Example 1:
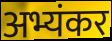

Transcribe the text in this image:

अभ्यंकर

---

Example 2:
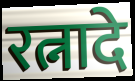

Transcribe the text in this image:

रत्नादे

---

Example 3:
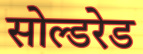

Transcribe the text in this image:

सोल्डरेड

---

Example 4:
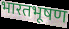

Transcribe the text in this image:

भारतभूषण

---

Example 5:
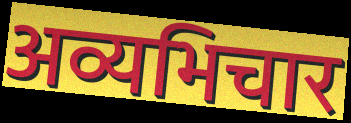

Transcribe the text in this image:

अव्यभिचार